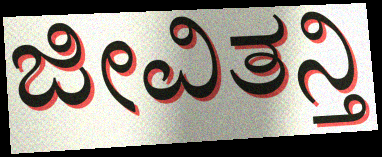
ಜೀವಿತನ್ತಿ